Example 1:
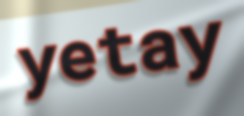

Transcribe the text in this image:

yetay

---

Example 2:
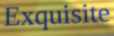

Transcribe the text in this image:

Exquisite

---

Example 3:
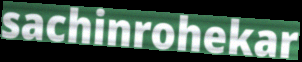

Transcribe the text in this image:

sachinrohekar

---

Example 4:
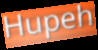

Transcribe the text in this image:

Hupeh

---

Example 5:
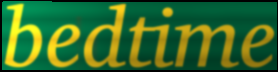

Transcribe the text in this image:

bedtime